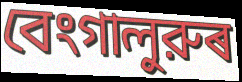
বেংগালুৰুৰ